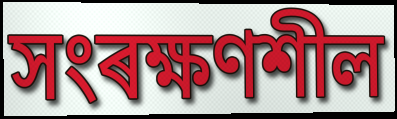
সংৰক্ষণশীল